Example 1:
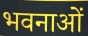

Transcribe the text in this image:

भवनाओं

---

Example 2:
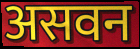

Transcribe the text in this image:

असवन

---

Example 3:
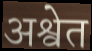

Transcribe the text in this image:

अश्वेत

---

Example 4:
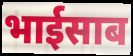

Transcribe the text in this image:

भाईसाब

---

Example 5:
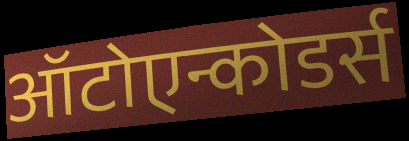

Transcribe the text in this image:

ऑटोएन्कोडर्स